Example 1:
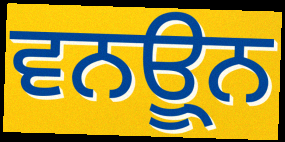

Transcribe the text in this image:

ਵਨਊ੍ਨ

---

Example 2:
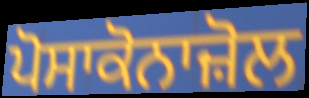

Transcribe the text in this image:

ਪੋਸਾਕੋਨਾਜ਼ੋਲ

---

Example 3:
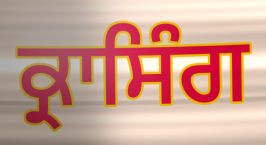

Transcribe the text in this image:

ਕ੍ਰਾਸਿੰਗ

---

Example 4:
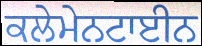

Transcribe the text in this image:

ਕਲੇਮੇਨਟਾਈਨ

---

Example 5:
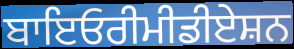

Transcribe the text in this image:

ਬਾਇਓਰੀਮੀਡੀਏਸ਼ਨ